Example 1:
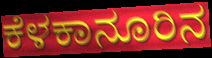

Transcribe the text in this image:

ಕೆಳಕಾನೂರಿನ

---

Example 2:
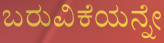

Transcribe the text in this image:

ಬರುವಿಕೆಯನ್ನೇ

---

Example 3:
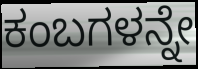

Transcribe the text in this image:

ಕಂಬಗಳನ್ನೇ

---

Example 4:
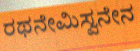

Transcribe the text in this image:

ರಥನೇಮಿಸ್ವನೇನ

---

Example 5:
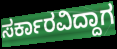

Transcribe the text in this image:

ಸರ್ಕಾರವಿದ್ದಾಗ